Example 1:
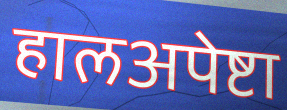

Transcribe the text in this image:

हालअपेष्टा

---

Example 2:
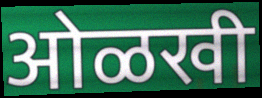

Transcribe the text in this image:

ओळखी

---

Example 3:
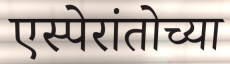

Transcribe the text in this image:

एस्पेरांतोच्या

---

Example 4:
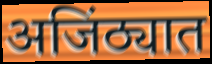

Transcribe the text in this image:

अजिंठ्यात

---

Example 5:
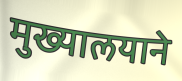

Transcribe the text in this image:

मुख्यालयाने